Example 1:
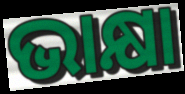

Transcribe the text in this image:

ଭାକ୍ଷା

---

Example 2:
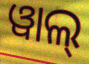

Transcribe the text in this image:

ୱାଲ୍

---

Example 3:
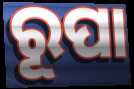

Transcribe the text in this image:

ରୂପା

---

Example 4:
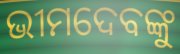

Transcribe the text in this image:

ଭୀମଦେବଙ୍କୁ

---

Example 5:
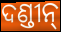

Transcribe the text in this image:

ଦଣ୍ଡୀନ୍